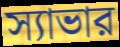
স্যাভার